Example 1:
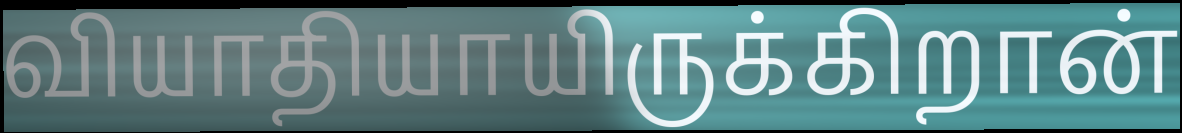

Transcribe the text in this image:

வியாதியாயிருக்கிறான்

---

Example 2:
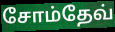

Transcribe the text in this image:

சோம்தேவ்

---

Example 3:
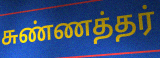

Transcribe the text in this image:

சுண்ணத்தர்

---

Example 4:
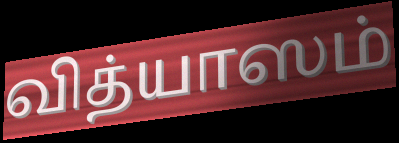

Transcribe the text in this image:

வித்யாஸம்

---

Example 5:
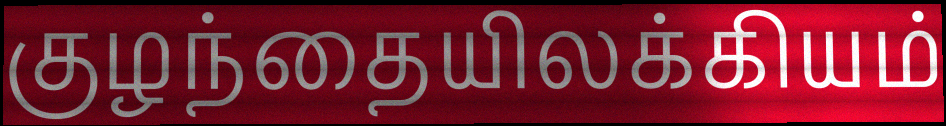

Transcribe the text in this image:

குழந்தையிலக்கியம்